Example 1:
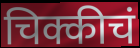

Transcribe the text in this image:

चिक्कीचं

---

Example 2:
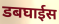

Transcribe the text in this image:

डबघाईस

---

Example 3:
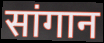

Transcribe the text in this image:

सांगान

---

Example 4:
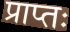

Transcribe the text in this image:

प्राप्तः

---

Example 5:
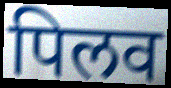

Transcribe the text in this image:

पिलव